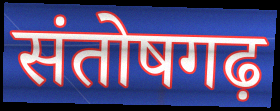
संतोषगढ़